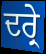
ਦਰ੍ਰੇ